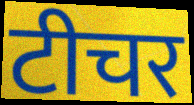
टीचर